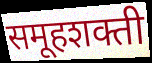
समूहशक्ती